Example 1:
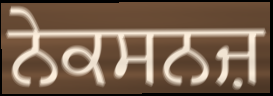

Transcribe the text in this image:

ਨੇਕਸਨਜ਼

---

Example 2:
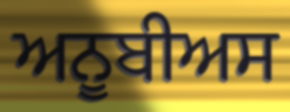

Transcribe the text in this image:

ਅਨੂਬੀਅਸ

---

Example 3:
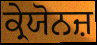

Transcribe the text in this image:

ਕ੍ਰੇਯੋਨਜ਼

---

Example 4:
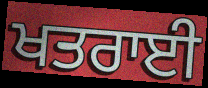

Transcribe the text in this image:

ਖਤਰਾਈ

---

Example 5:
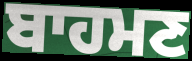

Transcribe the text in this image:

ਬਾਹਮਣ